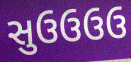
સુઉઉઉઉ